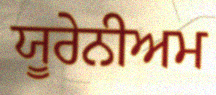
ਯੂਰੇਨੀਅਮ